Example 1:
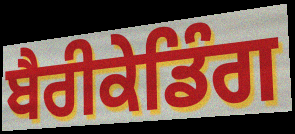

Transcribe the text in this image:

ਬੈਰੀਕੇਡਿੰਗ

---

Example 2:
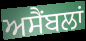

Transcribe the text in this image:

ਅਸੈਂਬਲਾਂ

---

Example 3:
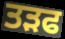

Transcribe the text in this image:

ਤੜਫ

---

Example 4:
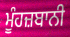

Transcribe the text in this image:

ਮੂੰਹਜ਼ਬਾਨੀ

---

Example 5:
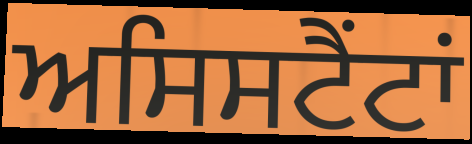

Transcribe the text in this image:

ਅਸਿਸਟੈਂਟਾਂ